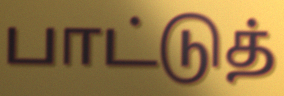
பாட்டுத்